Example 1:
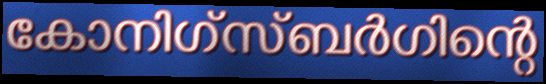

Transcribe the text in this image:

കോനിഗ്സ്ബർഗിന്റെ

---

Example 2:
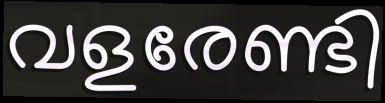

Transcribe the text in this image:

വളരേണ്ടി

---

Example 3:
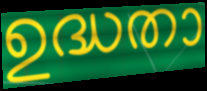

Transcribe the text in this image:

ഉദ്ധതാ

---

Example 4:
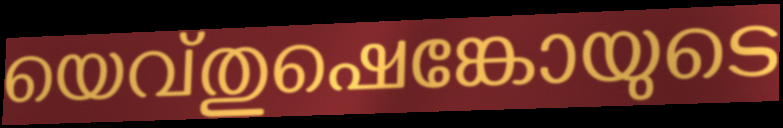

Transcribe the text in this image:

യെവ്തുഷെങ്കോയുടെ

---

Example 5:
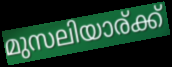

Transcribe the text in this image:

മുസലിയാര്ക്ക്